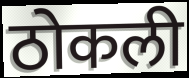
ठोकली